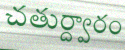
చతుర్ద్వారం